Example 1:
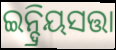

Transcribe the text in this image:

ଇନ୍ଦ୍ରିୟସତ୍ତା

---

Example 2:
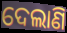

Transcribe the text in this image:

ଦେଲାଣି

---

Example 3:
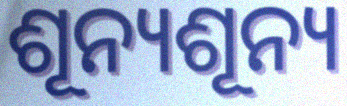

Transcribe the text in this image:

ଶୂନ୍ୟଶୂନ୍ୟ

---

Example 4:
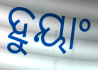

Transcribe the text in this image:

ହୁୟାଂ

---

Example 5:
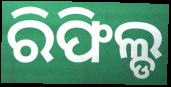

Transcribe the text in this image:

ରିଫିଲ୍ଡ